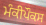
ਮੰਕੀਪੌਕਸ